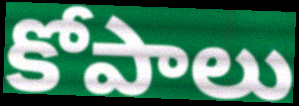
కోపాలు